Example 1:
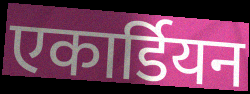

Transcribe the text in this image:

एकार्डियन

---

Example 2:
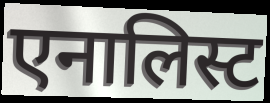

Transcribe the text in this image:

एनालिस्ट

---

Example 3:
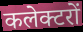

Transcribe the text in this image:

कलेक्टरों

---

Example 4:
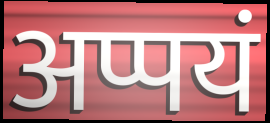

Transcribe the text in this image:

अप्पयं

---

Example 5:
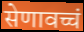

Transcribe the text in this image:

सेणावच्चं